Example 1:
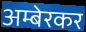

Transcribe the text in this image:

अम्बेरकर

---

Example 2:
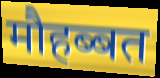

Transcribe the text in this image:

मौहब्बत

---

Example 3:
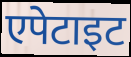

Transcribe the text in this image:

एपेटाइट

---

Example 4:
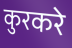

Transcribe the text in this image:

कुरकरे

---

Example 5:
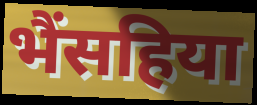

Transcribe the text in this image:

भैंसहिया